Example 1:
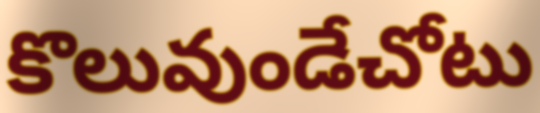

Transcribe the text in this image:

కొలువుండేచోటు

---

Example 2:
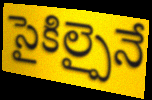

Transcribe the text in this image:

సైకిల్పైనే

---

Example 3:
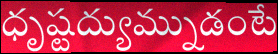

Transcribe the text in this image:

ధృష్టద్యుమ్నుడంటే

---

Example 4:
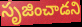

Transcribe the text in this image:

సృజించాడని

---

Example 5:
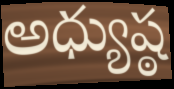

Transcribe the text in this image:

అధ్యుష్ఠ